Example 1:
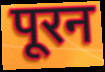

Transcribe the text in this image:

पूरन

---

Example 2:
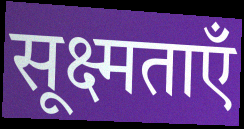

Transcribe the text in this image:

सूक्ष्मताएँ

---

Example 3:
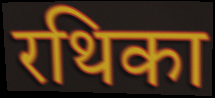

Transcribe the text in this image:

रथिका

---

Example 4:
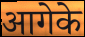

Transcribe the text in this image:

आगेके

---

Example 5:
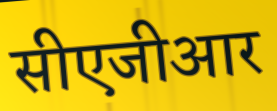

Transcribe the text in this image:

सीएजीआर